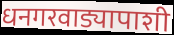
धनगरवाड्यापाशी